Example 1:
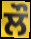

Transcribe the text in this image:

ਲੌ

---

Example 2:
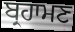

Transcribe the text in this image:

ਬ੍ਰਹਾਮਣ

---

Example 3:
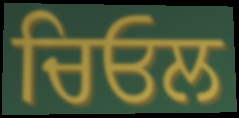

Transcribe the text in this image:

ਚਿਓਲ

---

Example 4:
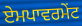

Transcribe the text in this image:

ਏਮਪਾਵਰਮੇਂਟ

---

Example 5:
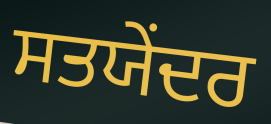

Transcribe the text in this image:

ਸਤਯੇਂਦਰ